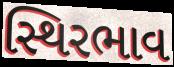
સ્થિરભાવ